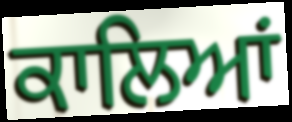
ਕਾਲਿਆਂ